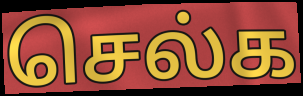
செல்க